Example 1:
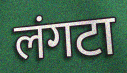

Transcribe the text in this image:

लंगटा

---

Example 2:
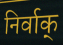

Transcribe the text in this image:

निर्वाक्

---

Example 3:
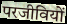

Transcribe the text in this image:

परजीवियों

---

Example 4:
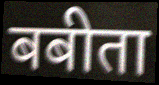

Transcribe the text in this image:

बबीता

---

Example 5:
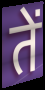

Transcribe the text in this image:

तें